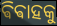
ଵିଵାହକୁ